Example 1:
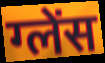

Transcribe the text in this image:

ग्लेंस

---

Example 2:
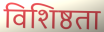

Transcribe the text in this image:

विशिष्ठता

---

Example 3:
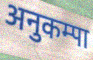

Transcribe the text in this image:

अनुकम्पा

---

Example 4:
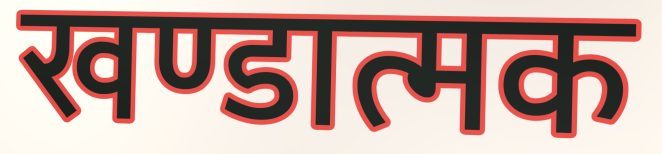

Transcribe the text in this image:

खण्डात्मक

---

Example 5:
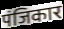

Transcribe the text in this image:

पंजिकार